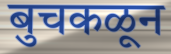
बुचकळून